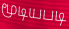
மூடியபடி